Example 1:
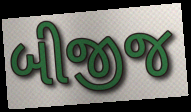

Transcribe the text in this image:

બીજીજ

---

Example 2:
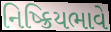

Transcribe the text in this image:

નિષ્ક્રિયભાવે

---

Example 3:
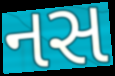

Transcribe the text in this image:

નસ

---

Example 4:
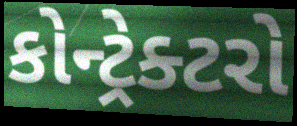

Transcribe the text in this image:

કોન્ટ્રેક્ટરો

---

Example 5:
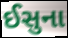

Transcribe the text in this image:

ઈસુના